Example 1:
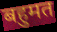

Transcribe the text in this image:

बहुमत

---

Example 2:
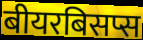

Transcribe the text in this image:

बीयरबिसप्स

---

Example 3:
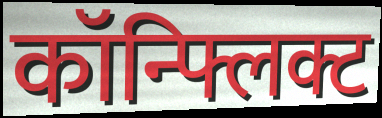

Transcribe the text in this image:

कॉन्फ्लिक्ट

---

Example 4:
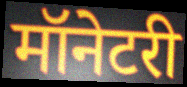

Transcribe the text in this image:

मॉनेटरी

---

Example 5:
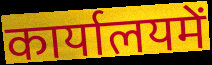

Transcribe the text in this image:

कार्यालयमें